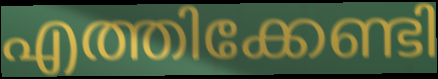
എത്തിക്കേണ്ടി